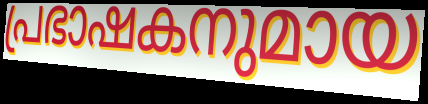
പ്രഭാഷകനുമായ